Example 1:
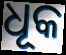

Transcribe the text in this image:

ଧୂକ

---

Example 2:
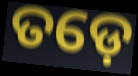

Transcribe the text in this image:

ତଡ଼େ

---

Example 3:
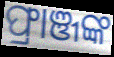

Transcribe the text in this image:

ଫ୍ରାଞ୍ଜଙ୍କ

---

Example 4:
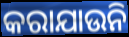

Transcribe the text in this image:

କରାଯାଉନି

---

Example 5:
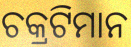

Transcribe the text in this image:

ଚକ୍ରଟିମାନ